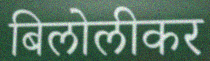
बिलोलीकर